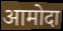
आमोदा